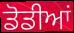
ਡੋਡੀਆਂ